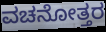
ವಚನೋತ್ತರ